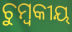
ଚୁମ୍ବକୀୟ